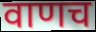
वाणच